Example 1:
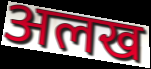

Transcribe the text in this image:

अलख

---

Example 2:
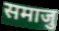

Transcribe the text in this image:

समाजु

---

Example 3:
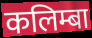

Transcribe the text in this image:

कलिम्बा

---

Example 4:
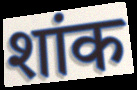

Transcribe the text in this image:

शांक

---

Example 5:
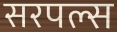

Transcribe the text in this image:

सरपल्स